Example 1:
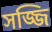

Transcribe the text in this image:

সজ্জি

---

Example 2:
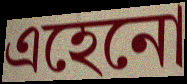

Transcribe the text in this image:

এহেনো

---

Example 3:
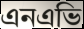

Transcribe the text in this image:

এনএভি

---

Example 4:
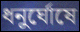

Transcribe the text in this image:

ধনুর্ঘোষে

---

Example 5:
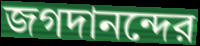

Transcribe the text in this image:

জগদানন্দের